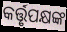
କର୍ତ୍ତୃପକ୍ଷଙ୍କ